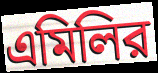
এমিলির